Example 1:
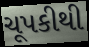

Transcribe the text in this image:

ચૂપકીથી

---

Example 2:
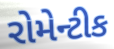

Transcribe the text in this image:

રોમેન્ટીક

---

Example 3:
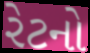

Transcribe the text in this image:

રેટનો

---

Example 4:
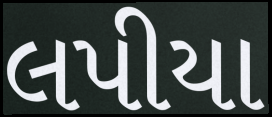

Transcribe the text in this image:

લપીયા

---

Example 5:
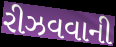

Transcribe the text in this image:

રીઝવવાની